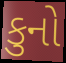
કુનો